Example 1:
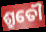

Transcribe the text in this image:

ଶ୍ରୁତୌ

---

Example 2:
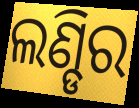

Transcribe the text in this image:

ଲଣ୍ଡିର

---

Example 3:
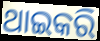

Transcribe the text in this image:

ଥାଇକରି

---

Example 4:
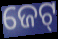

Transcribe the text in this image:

ଜେଟ୍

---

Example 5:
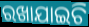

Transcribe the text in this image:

ରଖାଯାଇଚି